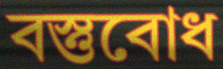
বস্তুবোধ